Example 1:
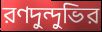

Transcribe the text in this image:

রণদুন্দুভির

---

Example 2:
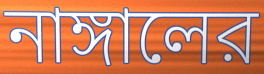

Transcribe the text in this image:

নাঙ্গালের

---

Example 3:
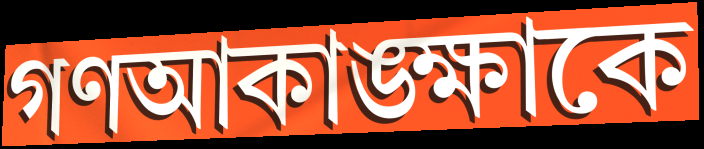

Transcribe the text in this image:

গণআকাঙ্ক্ষাকে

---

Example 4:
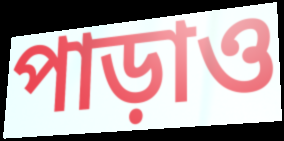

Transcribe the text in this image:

পাড়াও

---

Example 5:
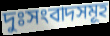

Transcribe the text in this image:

দুঃসংবাদসমূহ